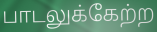
பாடலுக்கேற்ற